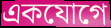
একযোগে